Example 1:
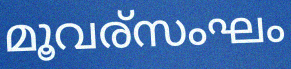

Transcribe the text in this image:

മൂവര്സംഘം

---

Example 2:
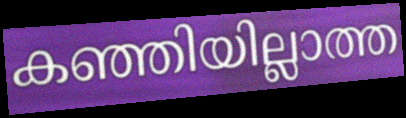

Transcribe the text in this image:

കഞ്ഞിയില്ലാത്ത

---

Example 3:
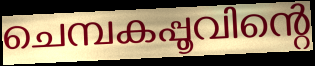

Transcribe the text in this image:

ചെമ്പകപ്പൂവിന്റെ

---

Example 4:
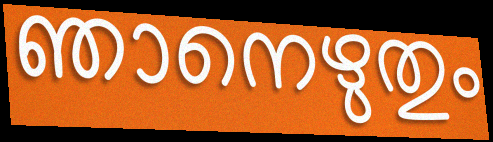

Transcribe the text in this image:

ഞാനെഴുതും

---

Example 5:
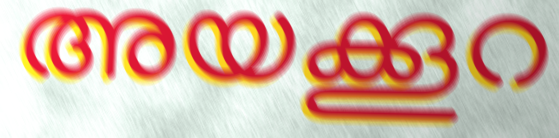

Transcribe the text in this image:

അയക്കൂറ